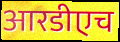
आरडीएच